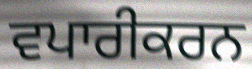
ਵਪਾਰੀਕਰਨ